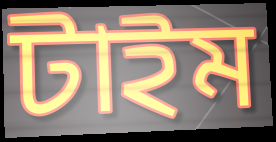
টাইম